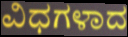
ವಿಧಗಳಾದ